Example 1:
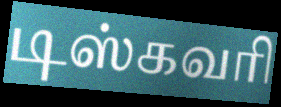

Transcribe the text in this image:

டிஸ்கவரி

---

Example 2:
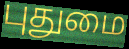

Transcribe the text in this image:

புதுமை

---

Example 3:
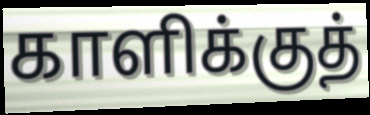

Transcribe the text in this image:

காளிக்குத்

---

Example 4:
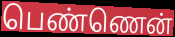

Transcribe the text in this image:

பெண்ணென்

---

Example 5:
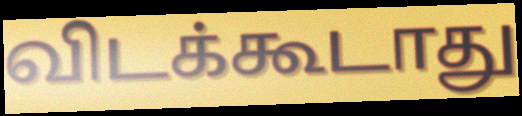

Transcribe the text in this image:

விடக்கூடாது